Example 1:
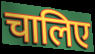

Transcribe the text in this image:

चालिए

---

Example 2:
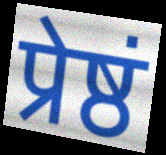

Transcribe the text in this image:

प्रेष्ठं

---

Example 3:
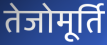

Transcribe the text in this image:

तेजोमूर्ति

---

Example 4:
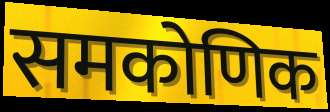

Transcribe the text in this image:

समकोणिक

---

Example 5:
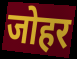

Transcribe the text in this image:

जोहर